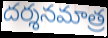
దర్శనమాత్ర